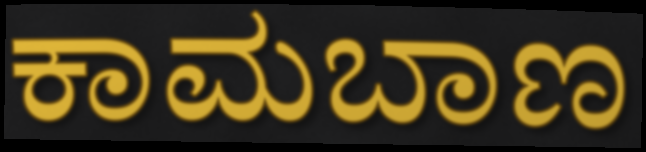
ಕಾಮಬಾಣ